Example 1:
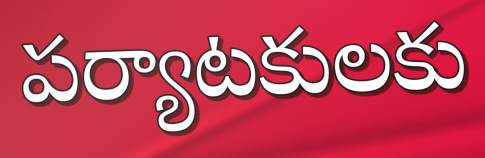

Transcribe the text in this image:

పర్యాటకులకు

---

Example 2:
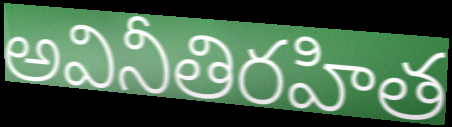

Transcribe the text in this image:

అవినీతిరహిత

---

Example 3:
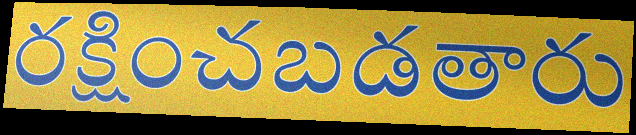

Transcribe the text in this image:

రక్షించబడతారు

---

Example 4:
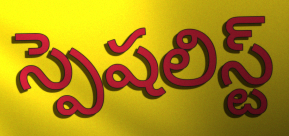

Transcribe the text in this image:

స్పెషలిస్ట్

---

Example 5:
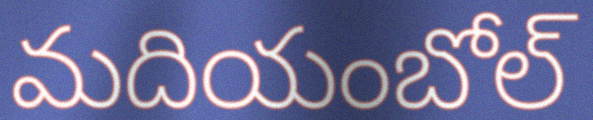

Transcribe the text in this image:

మదియంబోల్